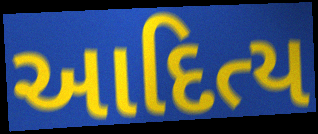
આદિત્ય